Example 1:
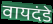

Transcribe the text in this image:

वायदंडे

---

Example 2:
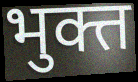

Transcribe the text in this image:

भुक्त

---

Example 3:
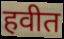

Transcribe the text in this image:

हवीत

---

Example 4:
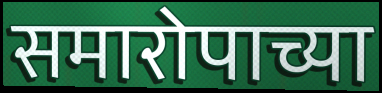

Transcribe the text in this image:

समारोपाच्या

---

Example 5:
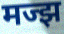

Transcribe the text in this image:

मज्झ